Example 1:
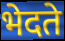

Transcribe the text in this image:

भेदते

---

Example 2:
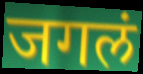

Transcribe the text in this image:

जगलं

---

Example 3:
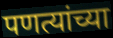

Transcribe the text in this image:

पणत्यांच्या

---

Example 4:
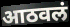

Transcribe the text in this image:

आठवलं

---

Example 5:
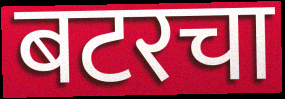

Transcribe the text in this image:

बटरचा